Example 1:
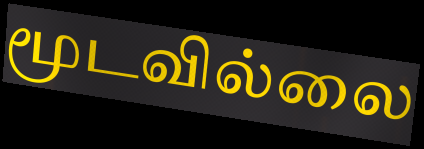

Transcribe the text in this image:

மூடவில்லை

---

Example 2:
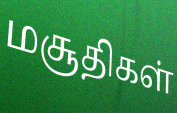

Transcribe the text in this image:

மசூதிகள்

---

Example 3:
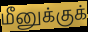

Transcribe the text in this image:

மீனுக்குக்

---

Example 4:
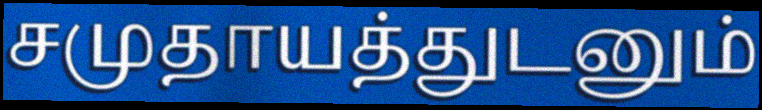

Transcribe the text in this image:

சமுதாயத்துடனும்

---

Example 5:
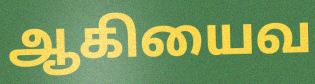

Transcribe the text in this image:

ஆகியைவ